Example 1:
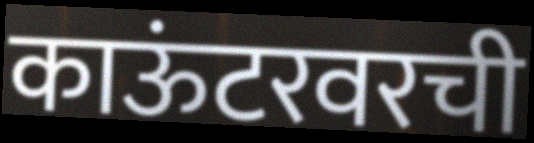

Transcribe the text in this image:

काऊंटरवरची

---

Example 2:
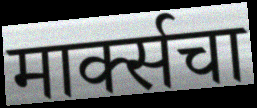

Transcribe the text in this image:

मार्क्सचा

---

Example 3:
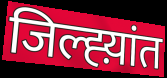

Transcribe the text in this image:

जिल्ह्य़ांत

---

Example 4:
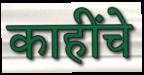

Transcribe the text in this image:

काहींचे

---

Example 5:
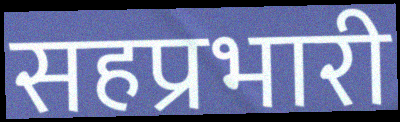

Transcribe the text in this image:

सहप्रभारी